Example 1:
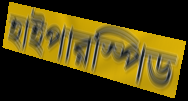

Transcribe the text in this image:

হাইপারস্পিড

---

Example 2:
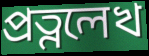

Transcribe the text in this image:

প্রত্নলেখ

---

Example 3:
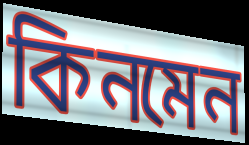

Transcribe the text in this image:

কিনমেন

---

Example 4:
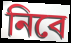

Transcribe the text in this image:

নিবে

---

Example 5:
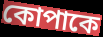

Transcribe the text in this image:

কোপাকে